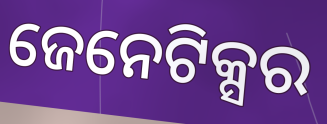
ଜେନେଟିକ୍ସର